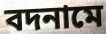
বদনামে